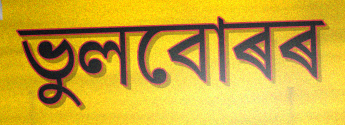
ভুলবোৰৰ